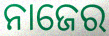
ନାଜେର